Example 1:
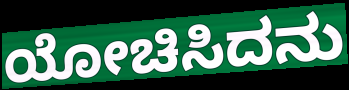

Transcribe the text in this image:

ಯೋಚಿಸಿದನು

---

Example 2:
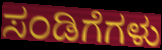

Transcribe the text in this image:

ಸಂಡಿಗೆಗಳು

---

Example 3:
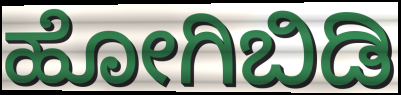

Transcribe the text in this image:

ಹೋಗಿಬಿಡಿ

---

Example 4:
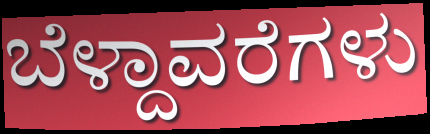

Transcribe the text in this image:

ಬೆಳ್ದಾವರೆಗಳು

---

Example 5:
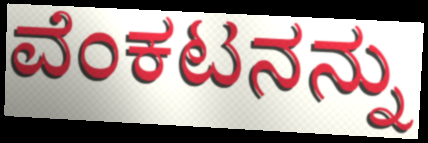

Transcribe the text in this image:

ವೆಂಕಟನನ್ನು